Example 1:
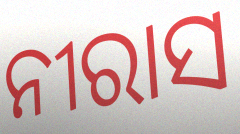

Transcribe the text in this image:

ନୀରାସ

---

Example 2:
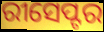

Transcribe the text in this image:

ରୀସେପ୍ଟର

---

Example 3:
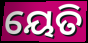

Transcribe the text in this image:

ୟେତି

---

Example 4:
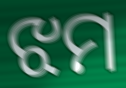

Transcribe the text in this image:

ଝମ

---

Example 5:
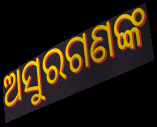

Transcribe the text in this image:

ଅସୁରଗଣଙ୍କ